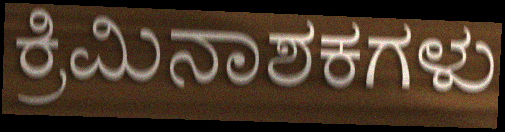
ಕ್ರಿಮಿನಾಶಕಗಳು